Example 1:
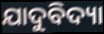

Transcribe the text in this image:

ଯାଦୁବିଦ୍ୟା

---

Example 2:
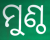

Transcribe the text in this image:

ମୁଣ୍ଠ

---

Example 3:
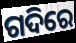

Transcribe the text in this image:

ଗଦିରେ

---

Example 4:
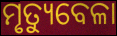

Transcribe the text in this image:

ମୃତ୍ୟୁବେଳା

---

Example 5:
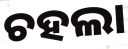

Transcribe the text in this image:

ଚହଲା